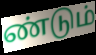
ண்டும்